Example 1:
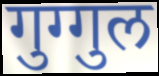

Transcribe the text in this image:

गुग्गुल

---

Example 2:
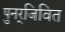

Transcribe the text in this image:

पुनर्जिवित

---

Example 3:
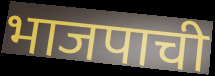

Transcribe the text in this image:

भाजपाची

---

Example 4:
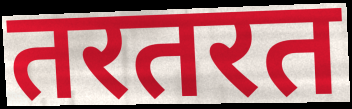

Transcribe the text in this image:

तरतरत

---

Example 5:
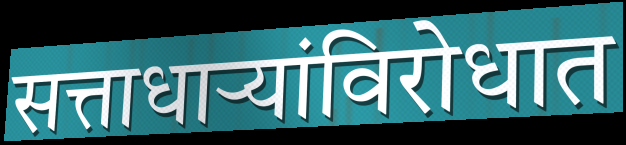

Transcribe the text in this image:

सत्ताधाऱ्यांविरोधात